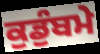
ਕੁਡੁੰਬਮੇ